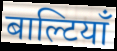
बाल्टियाँ